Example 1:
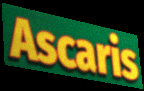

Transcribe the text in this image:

Ascaris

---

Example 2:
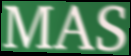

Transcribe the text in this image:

MAS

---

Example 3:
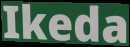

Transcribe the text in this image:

Ikeda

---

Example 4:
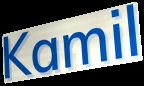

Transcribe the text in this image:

Kamil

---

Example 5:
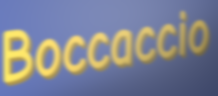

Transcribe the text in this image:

Boccaccio